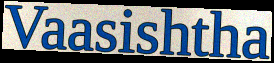
Vaasishtha